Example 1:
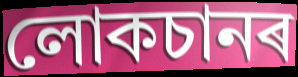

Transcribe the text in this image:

লোকচানৰ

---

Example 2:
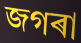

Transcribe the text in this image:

জগৰা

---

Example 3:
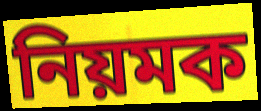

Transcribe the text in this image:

নিয়মক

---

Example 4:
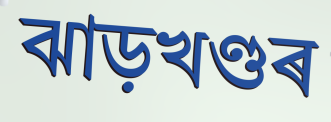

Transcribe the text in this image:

ঝাড়খণ্ডৰ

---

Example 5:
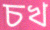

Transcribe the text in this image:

চখ